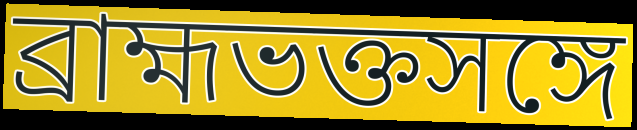
ব্রাহ্মভক্তসঙ্গে